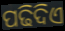
ପଢିଦିଏ